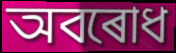
অবৰোধ